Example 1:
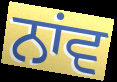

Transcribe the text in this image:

ਨਾਂਵ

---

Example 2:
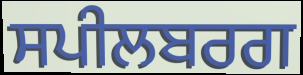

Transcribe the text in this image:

ਸਪੀਲਬਰਗ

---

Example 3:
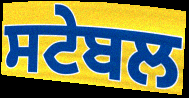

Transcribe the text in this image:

ਸਟੇਬਲ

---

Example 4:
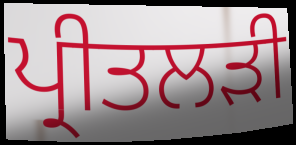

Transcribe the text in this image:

ਪ੍ਰੀਤਲੜੀ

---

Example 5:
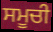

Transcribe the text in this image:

ਸਮੂਚੀ